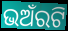
ଭଅଁରଟି